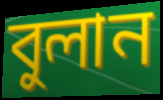
বুলান